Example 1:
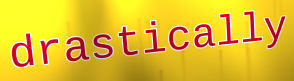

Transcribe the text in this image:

drastically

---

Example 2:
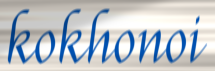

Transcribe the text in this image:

kokhonoi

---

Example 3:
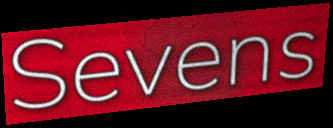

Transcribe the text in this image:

Sevens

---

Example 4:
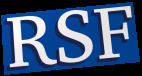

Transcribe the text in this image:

RSF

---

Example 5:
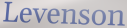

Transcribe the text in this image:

Levenson